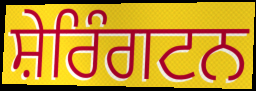
ਸ਼ੇਰਿੰਗਟਨ